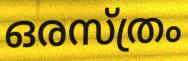
ഒരസ്ത്രം